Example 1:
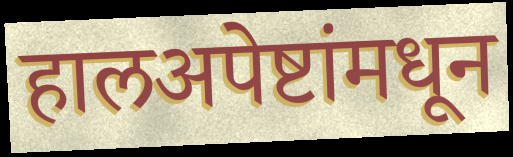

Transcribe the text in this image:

हालअपेष्टांमधून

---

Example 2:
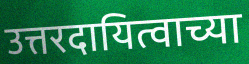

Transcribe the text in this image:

उत्तरदायित्वाच्या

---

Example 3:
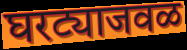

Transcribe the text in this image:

घरट्याजवळ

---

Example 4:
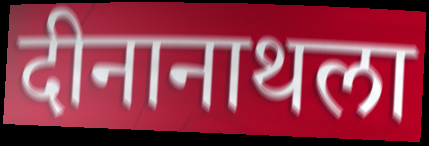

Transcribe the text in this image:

दीनानाथला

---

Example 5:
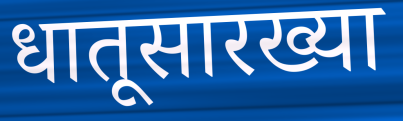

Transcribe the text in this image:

धातूसारख्या